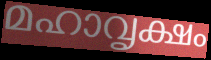
മഹാവൃക്ഷം